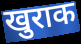
खुराक